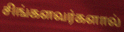
சிங்களவர்களால்